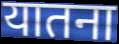
यातना